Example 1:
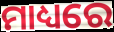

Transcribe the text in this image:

ମାଧ୍ୟରେ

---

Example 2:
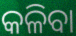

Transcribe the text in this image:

କଳିବା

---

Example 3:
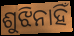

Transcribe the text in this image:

ଶୁଝିନାହିଁ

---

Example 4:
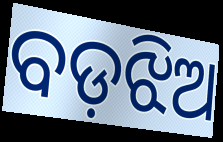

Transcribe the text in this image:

ବଡ଼ଝିଅ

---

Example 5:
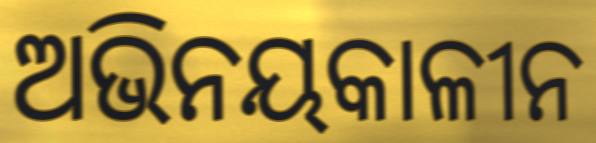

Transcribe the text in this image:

ଅଭିନୟକାଳୀନ